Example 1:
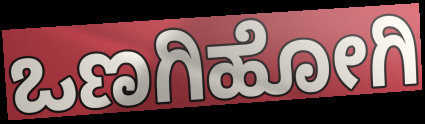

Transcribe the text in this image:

ಒಣಗಿಹೋಗಿ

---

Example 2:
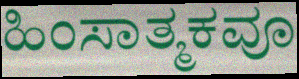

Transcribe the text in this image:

ಹಿಂಸಾತ್ಮಕವೂ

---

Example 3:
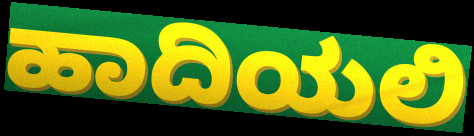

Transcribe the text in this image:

ಹಾದಿಯಲಿ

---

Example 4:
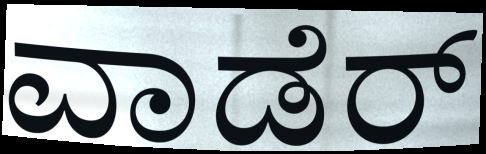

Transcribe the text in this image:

ವಾಡೆರ್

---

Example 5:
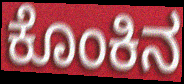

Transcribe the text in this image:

ಕೊಂಕಿನ